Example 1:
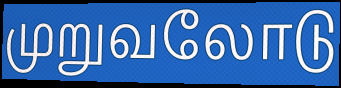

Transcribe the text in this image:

முறுவலோடு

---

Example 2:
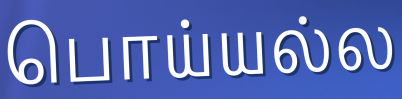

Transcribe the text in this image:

பொய்யல்ல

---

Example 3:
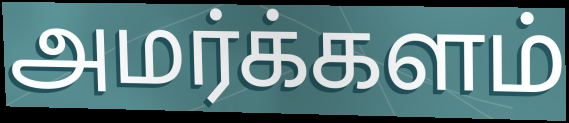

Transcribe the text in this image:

அமர்க்களம்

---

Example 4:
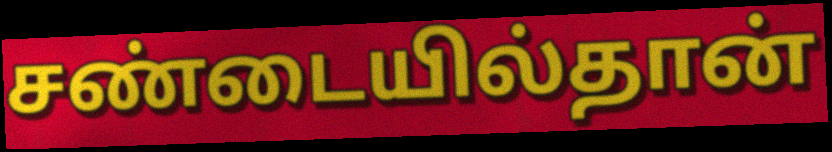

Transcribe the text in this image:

சண்டையில்தான்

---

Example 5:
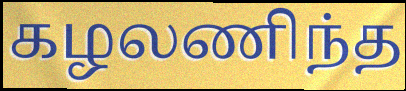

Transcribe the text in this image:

கழலணிந்த